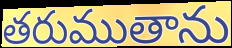
తరుముతాను